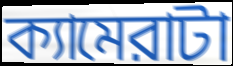
ক্যামেরাটা